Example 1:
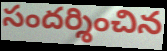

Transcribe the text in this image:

సందర్శించిన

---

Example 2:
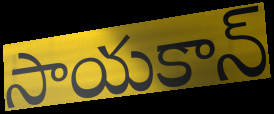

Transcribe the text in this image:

సాయకాన్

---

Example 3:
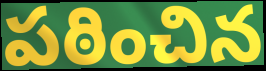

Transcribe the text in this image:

పఠించిన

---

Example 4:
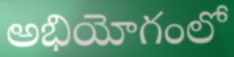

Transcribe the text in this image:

అభియోగంలో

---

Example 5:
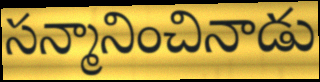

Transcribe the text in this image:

సన్మానించినాడు